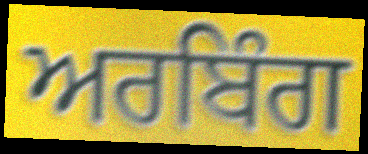
ਅਰਬਿੰਗ